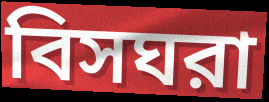
বিসঘরা